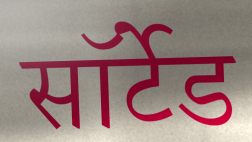
सॉर्टेड